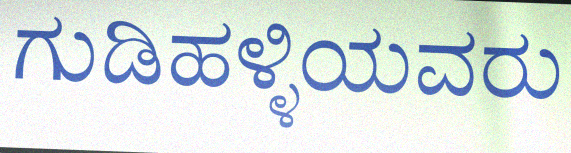
ಗುಡಿಹಳ್ಳಿಯವರು